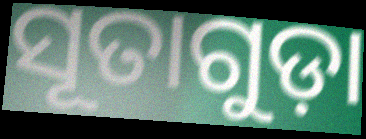
ସୂତାଗୁଡ଼ା